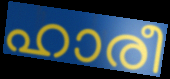
ഹാരീ